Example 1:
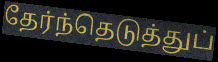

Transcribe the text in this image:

தேர்ந்தெடுத்துப்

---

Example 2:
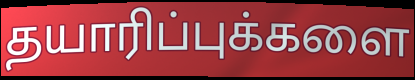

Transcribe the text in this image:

தயாரிப்புக்களை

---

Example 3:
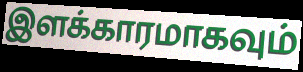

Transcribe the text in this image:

இளக்காரமாகவும்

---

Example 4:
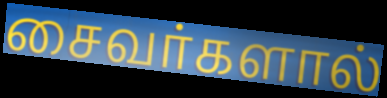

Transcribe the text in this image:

சைவர்களால்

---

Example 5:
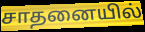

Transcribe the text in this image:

சாதனையில்